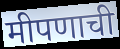
मीपणाची